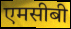
एमसीबी